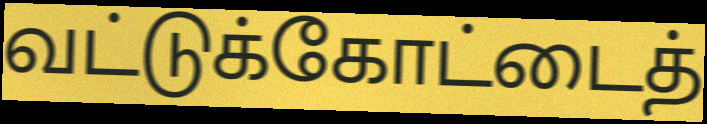
வட்டுக்கோட்டைத்